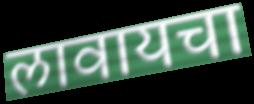
लावायचा